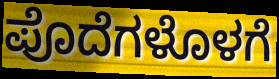
ಪೊದೆಗಳೊಳಗೆ